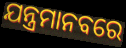
ଯନ୍ତ୍ରମାନବରେ